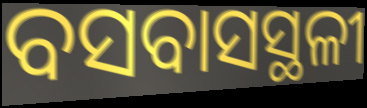
ବସବାସସ୍ଥଳୀ